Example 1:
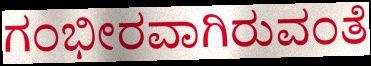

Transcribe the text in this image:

ಗಂಭೀರವಾಗಿರುವಂತೆ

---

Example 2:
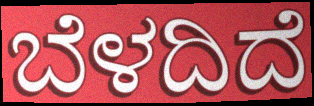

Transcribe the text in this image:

ಬೆಳದಿದೆ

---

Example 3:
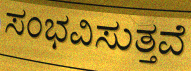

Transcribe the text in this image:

ಸಂಭವಿಸುತ್ತವೆ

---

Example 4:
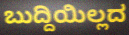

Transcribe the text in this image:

ಬುದ್ದಿಯಿಲ್ಲದ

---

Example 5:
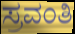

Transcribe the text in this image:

ಸ್ರವಂತಿ